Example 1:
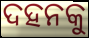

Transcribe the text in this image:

ଦହନକୁ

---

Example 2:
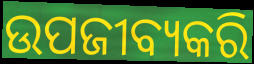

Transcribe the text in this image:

ଉପଜୀବ୍ୟକରି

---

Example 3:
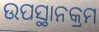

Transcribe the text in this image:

ଉପସ୍ଥାନକ୍ରମ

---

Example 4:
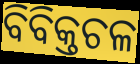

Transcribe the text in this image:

ବିବିକ୍ତଚଳ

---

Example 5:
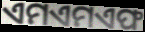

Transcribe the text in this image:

ଏମଏମଏଫ